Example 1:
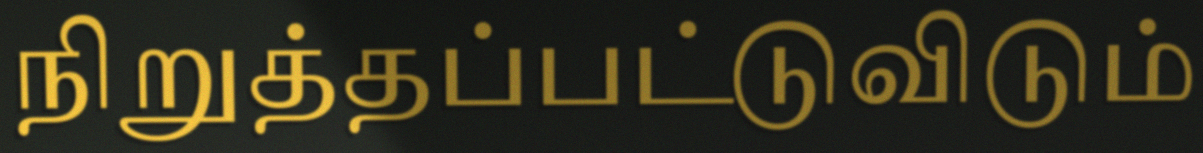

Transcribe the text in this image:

நிறுத்தப்பட்டுவிடும்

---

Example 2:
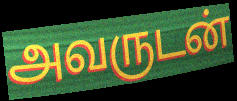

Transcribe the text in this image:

அவருடன்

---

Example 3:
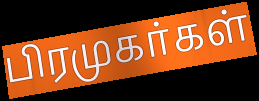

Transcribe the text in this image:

பிரமுகர்கள்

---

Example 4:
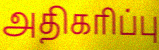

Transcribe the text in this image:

அதிகரிப்பு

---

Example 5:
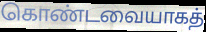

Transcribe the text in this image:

கொண்டவையாகத்